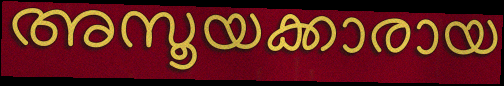
അസൂയക്കാരായ